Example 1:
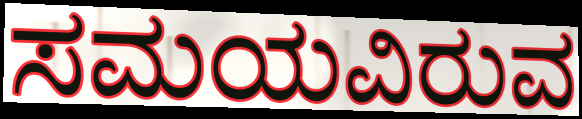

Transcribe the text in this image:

ಸಮಯವಿರುವ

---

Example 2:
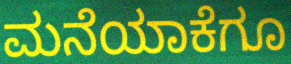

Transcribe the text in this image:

ಮನೆಯಾಕೆಗೂ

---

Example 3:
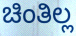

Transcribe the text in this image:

ಚಿಂತಿಲ್ಲ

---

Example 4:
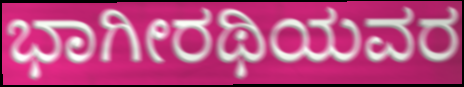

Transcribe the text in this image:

ಭಾಗೀರಥಿಯವರ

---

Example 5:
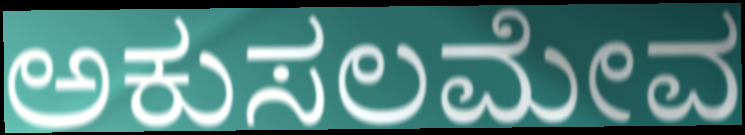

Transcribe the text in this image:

ಅಕುಸಲಮೇವ